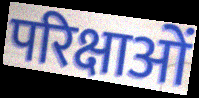
परिक्षाओं